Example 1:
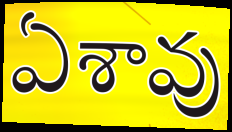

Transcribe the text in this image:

ఏశావు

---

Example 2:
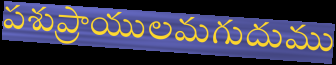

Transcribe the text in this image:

పశుప్రాయులమగుదుము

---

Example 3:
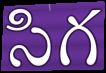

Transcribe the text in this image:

సిగ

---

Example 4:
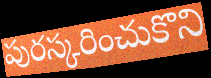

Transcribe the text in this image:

పురస్కరించుకొని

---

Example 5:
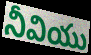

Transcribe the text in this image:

నీవియు